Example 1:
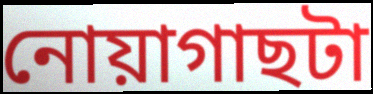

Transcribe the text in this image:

নোয়াগাছটা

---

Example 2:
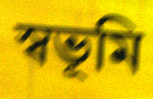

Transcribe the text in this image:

স্বভূমি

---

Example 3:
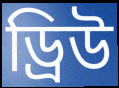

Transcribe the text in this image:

ড্রিউ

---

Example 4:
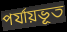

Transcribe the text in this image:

পর্যায়ভূত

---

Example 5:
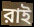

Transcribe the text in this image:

রাই